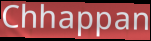
Chhappan